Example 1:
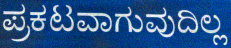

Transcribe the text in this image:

ಪ್ರಕಟವಾಗುವುದಿಲ್ಲ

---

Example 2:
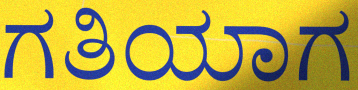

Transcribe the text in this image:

ಗತಿಯಾಗ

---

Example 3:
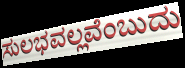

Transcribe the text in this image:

ಸುಲಭವಲ್ಲವೆಂಬುದು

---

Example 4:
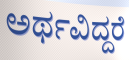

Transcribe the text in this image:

ಅರ್ಥವಿದ್ದರೆ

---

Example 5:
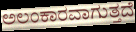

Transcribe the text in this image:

ಅಲಂಕಾರವಾಗುತ್ತದೆ